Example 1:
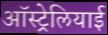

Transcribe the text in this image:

ऑस्ट्रेलियाई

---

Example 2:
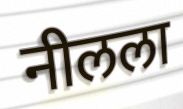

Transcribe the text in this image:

नीलला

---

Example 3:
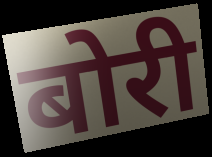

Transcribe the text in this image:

बोरी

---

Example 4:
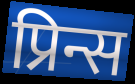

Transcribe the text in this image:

प्रिन्स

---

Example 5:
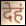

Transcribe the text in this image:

देहं